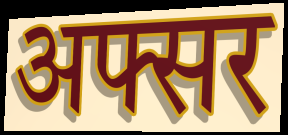
अफ्सर